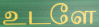
உடளே